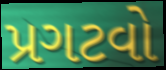
પ્રગટવો